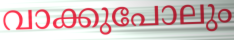
വാക്കുപോലും